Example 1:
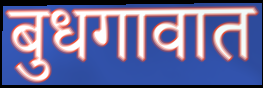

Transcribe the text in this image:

बुधगावात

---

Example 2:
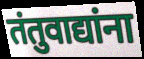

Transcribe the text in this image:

तंतुवाद्यांना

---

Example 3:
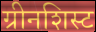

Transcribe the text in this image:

ग्रीनशिस्ट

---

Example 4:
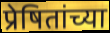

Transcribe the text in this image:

प्रेषितांच्या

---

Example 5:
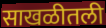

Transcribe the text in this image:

साखळीतली